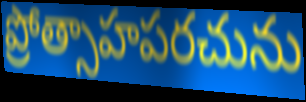
ప్రోత్సాహపరచును